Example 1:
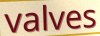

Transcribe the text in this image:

valves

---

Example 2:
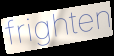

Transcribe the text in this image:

frighten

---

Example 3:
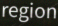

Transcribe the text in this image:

region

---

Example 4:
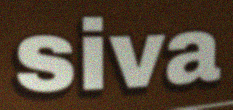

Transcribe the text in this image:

siva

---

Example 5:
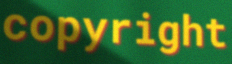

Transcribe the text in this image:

copyright